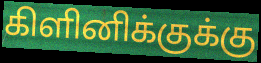
கிளினிக்குக்கு